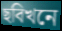
ছবিখনে